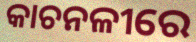
କାଚନଳୀରେ